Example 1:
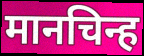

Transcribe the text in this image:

मानचिन्ह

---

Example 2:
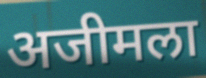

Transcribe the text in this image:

अजीमला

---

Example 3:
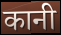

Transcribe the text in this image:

कानी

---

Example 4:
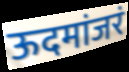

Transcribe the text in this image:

ऊदमांजरं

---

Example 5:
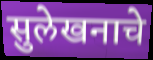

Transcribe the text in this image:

सुलेखनाचे